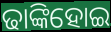
ଢାଙ୍କିହୋଇ